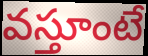
వస్తూంటే